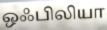
ஒஃபிலியா